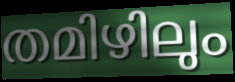
തമിഴിലും